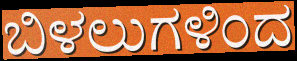
ಬಿಳಲುಗಳಿಂದ